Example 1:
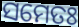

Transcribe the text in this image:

ସମେତଃ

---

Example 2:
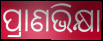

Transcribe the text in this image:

ପ୍ରାଣଭିକ୍ଷା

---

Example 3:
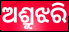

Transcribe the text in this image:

ଅଶ୍ରୁଝରି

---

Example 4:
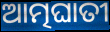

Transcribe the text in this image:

ଆତ୍ମଘାତୀ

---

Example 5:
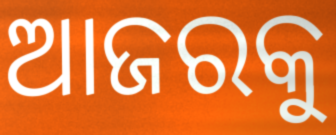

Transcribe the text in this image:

ଆଜରକୁ